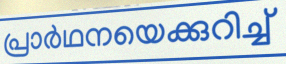
പ്രാർഥനയെക്കുറിച്ച്